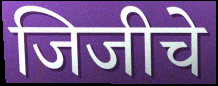
जिजीचे